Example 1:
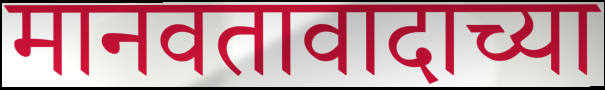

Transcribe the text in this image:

मानवतावादाच्या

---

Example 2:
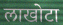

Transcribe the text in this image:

लाखोटा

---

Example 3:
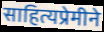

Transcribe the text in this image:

साहित्यप्रेमीने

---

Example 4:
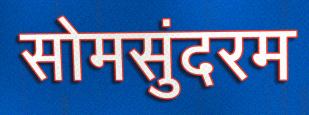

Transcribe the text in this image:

सोमसुंदरम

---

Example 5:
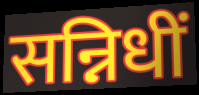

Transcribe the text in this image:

सन्निधीं